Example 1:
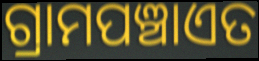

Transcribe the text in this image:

ଗ୍ରାମପଞ୍ଚାଏତ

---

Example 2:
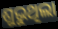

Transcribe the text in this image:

ଶୁଭୁଥିଲା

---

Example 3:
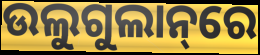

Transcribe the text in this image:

ଉଲୁଗୁଲାନ୍‌ରେ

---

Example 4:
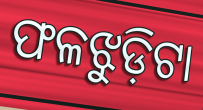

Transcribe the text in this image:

ଫଳଝୁଡ଼ିଟା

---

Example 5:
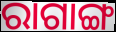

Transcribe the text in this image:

ରାଗାଙ୍ଗ